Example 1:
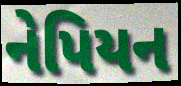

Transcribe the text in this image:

નેપિયન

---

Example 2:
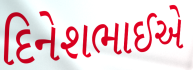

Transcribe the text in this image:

દિનેશભાઈએ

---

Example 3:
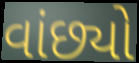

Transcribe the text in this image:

વાંછ્યો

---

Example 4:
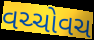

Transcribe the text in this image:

વચ્ચોવચ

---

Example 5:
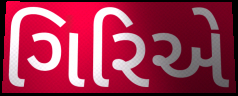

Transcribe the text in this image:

ગિરિએ